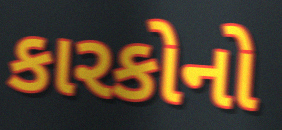
કારકોનો